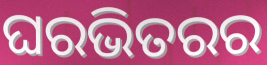
ଘରଭିତରର